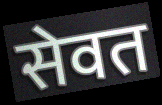
सेवत